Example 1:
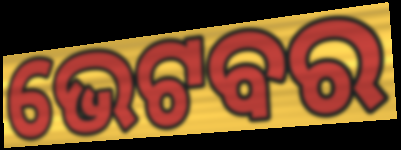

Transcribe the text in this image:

ଭେଟବର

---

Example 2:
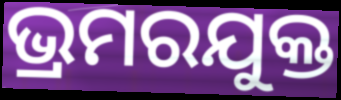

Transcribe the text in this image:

ଭ୍ରମରଯୁକ୍ତ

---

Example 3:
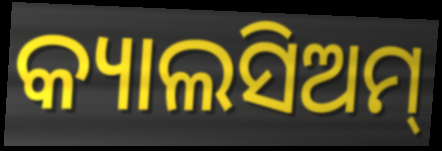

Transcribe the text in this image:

କ୍ୟାଲସିଅମ୍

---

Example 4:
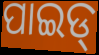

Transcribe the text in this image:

ପାଇଡ୍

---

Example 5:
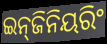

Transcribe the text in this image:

ଇନ୍‍ଜିନିୟରିଂ